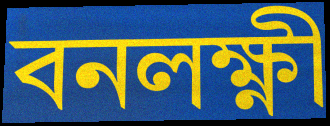
বনলক্ষ্ণী